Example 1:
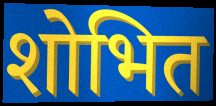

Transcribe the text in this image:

शोभित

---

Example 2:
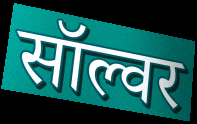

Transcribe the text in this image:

सॉल्वर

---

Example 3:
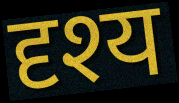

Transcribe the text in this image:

दृश्‍य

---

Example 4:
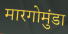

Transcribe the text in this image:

मारगोमुंडा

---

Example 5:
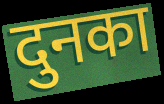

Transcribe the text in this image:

दुनका